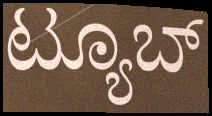
ಟ್ಯೂಬ್